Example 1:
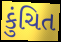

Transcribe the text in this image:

કુંચિત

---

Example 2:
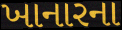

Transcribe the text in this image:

ખાનારના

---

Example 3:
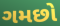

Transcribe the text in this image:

ગમછો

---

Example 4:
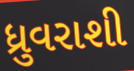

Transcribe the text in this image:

ધ્રુવરાશી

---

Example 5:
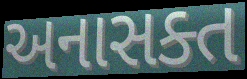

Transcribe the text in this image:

અનાસક્ત